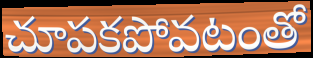
చూపకపోవటంతో